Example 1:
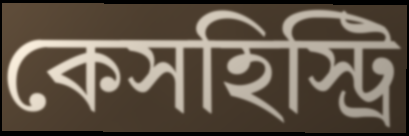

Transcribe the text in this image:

কেসহিস্ট্রি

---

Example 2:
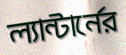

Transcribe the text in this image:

ল্যান্টার্নের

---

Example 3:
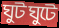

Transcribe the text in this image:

ঘুটঘুটে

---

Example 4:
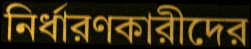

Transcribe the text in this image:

নির্ধারণকারীদের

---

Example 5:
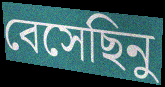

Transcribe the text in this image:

বেসেছিনু